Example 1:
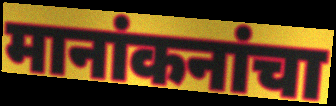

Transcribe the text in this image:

मानांकनांचा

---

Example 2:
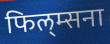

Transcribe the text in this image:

फिल्म्सना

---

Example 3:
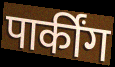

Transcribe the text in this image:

पार्कींग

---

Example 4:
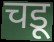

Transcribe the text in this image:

चडू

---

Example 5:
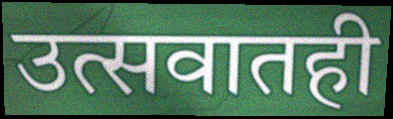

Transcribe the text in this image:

उत्सवातही